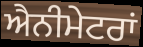
ਐਨੀਮੇਟਰਾਂ